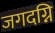
जगदग्नि